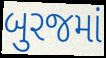
બુરજમાં